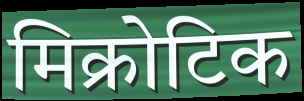
मिक्रोटिक